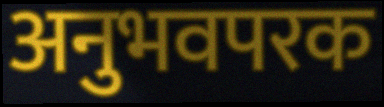
अनुभवपरक